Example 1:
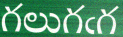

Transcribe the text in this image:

గలుగఁగ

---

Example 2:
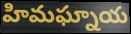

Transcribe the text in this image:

హిమఘ్నాయ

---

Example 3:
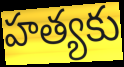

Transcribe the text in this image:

హత్యకు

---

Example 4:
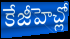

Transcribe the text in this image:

కేజీహెచ్లో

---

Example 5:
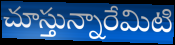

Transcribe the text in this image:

చూస్తున్నారేమిటి